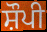
ਸ਼ੌਪੀ